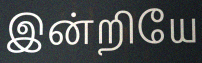
இன்றியே